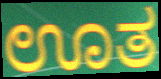
ಊತ